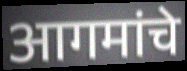
आगमांचे